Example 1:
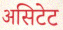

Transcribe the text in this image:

असिटेट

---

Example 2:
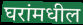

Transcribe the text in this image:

घरांमधील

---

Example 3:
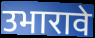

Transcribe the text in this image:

उभारावे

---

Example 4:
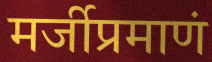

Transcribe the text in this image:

मर्जीप्रमाणं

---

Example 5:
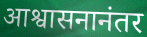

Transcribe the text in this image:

आश्वासनानंतर